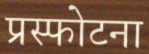
प्रस्फोटना